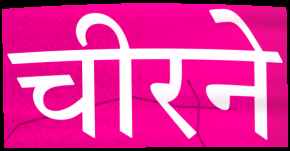
चीरने